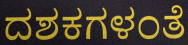
ದಶಕಗಳಂತೆ